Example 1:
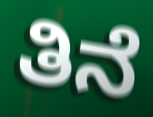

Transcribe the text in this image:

ತಿನೆ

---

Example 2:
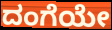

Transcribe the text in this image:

ದಂಗೆಯೇ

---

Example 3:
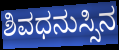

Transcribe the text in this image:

ಶಿವಧನುಸ್ಸಿನ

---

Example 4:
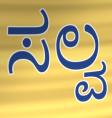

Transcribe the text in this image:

ಸಲ್ವ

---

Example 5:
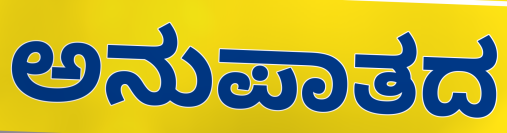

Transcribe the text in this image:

ಅನುಪಾತದ